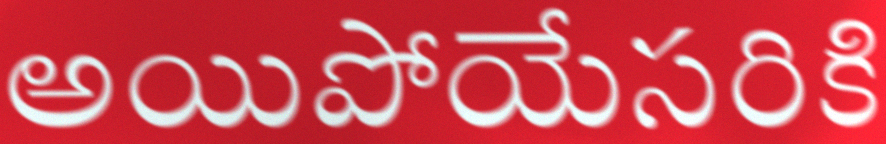
అయిపోయేసరికి